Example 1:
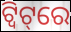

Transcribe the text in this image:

ଟ୍ବିଟ୍‌ରେ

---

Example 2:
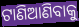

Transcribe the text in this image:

ଟାଣିଆଣିବାକୁ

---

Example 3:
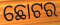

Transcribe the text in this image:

ଛୋଟର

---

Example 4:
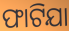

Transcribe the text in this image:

ଫାଟିଯା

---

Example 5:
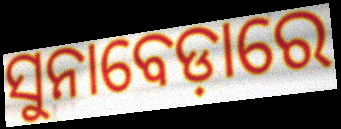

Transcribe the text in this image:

ସୁନାବେଡ଼ାରେ